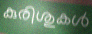
കുരിശുകൾ